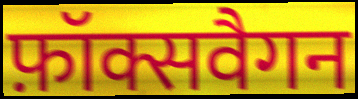
फ़ॉक्सवैगन